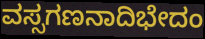
ವಸ್ಸಗಣನಾದಿಭೇದಂ